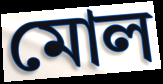
মোল